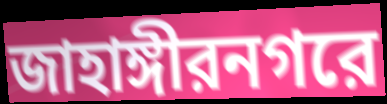
জাহাঙ্গীরনগরে